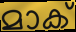
മാക്